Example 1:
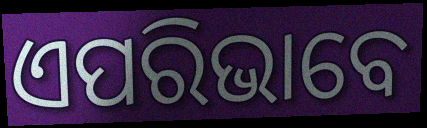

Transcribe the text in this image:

ଏପରିଭାବେ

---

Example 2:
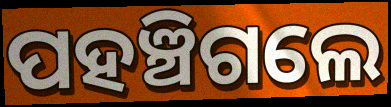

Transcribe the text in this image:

ପହଞ୍ଚିଗଲେ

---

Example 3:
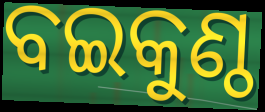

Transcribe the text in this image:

ବଇକୁଣ୍ଠ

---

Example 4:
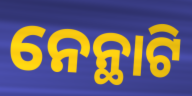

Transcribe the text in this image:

ନେନ୍ଥାଟି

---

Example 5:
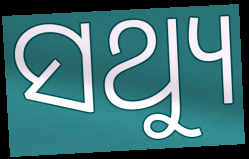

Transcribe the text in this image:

ସଥ୍ୟୁ